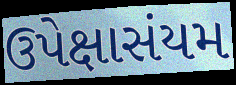
ઉપેક્ષાસંયમ